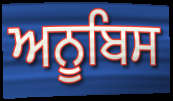
ਅਨੂਬਿਸ